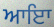
ਆਇਾ